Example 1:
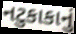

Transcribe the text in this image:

નટુકાકાનું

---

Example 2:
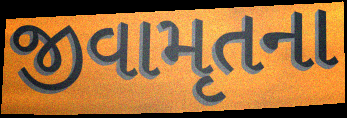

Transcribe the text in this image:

જીવામૃતના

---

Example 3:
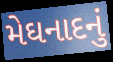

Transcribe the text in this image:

મેઘનાદનું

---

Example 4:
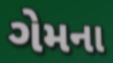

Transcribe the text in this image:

ગેમના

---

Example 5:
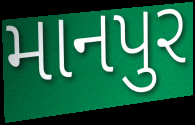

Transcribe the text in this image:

માનપુર